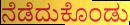
ನೆಡೆದುಕೊಂಡು